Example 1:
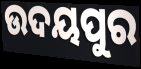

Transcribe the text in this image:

ଉଦୟପୁର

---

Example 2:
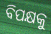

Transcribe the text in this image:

ବିପକ୍ଷକୁ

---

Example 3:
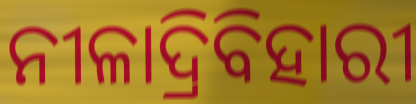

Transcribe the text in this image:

ନୀଳାଦ୍ରିବିହାରୀ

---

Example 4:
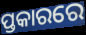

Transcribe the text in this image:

ପ୍ତକାରରେ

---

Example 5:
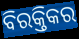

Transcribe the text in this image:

ବିରକ୍ତିକର